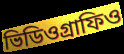
ভিডিওগ্রাফিও